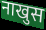
नाखुस